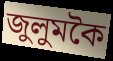
জুলুমকৈ